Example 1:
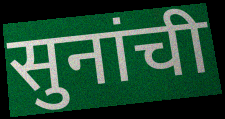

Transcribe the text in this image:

सुनांची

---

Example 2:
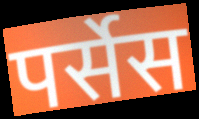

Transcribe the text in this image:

पर्सेस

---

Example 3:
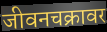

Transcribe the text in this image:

जीवनचक्रावर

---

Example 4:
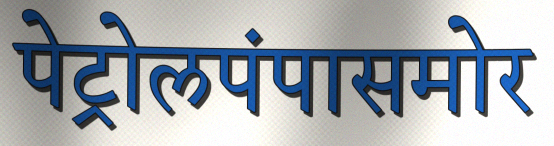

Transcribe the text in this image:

पेट्रोलपंपासमोर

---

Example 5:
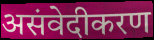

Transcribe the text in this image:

असंवेदीकरण